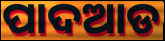
ପାଦଆଡ